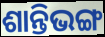
ଶାନ୍ତିଭଙ୍ଗ